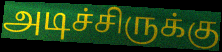
அடிச்சிருக்கு